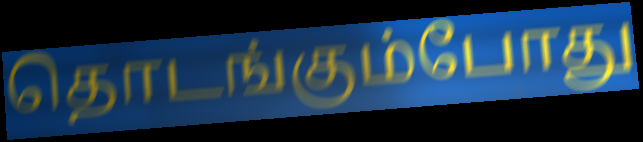
தொடங்கும்போது